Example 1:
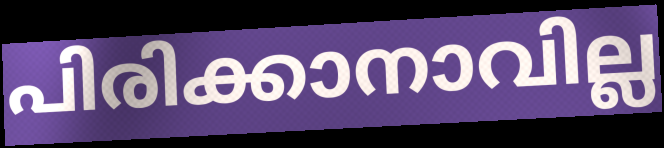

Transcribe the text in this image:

പിരിക്കാനാവില്ല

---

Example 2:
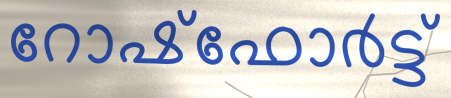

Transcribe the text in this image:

റോഷ്ഫോർട്ട്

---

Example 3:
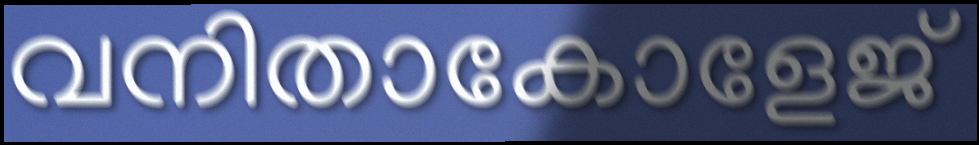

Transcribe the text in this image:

വനിതാകോളേജ്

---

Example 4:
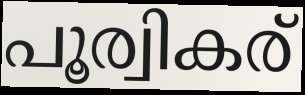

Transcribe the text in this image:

പൂര്വികര്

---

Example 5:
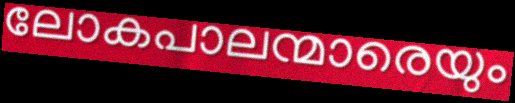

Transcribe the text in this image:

ലോകപാലന്മാരെയും